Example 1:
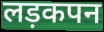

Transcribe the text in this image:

लड़कपन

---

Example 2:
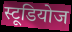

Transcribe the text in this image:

स्टूडियोज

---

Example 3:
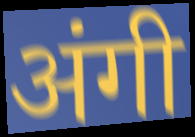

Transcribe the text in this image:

अंगी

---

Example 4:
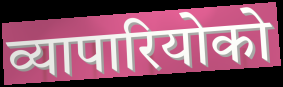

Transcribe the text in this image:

व्यापारियोको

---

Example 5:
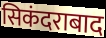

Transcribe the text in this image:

सिकंदराबाद